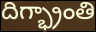
దిగ్భ్రాంతి